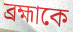
ব্রহ্মাকে